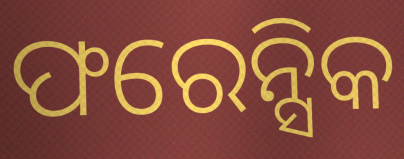
ଫରେନ୍ସିକ